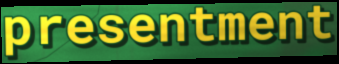
presentment